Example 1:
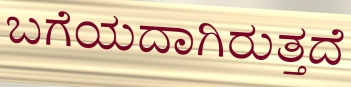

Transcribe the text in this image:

ಬಗೆಯದಾಗಿರುತ್ತದೆ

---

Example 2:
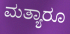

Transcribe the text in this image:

ಮತ್ಯಾರೂ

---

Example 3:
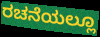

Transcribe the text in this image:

ರಚನೆಯಲ್ಲೂ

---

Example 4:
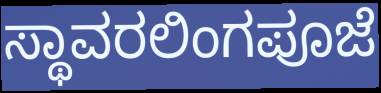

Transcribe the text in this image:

ಸ್ಥಾವರಲಿಂಗಪೂಜೆ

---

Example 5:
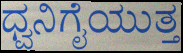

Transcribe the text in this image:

ಧ್ವನಿಗೈಯುತ್ತ